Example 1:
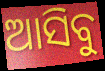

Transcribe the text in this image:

ଆସିବୁ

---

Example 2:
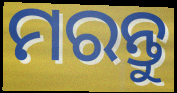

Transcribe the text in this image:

ମରନ୍ତୁ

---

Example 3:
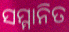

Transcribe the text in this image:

ସମ୍ମାନିତ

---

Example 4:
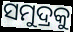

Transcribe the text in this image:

ସମୁଦ୍ରକୁ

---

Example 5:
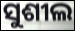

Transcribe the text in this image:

ସୁଶୀଲ